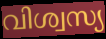
വിശ്വസ്യ